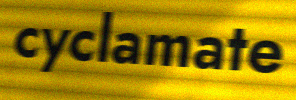
cyclamate